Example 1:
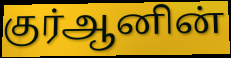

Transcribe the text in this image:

குர்ஆனின்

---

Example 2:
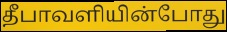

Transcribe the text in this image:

தீபாவளியின்போது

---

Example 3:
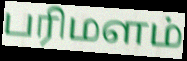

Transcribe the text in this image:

பரிமளம்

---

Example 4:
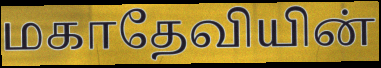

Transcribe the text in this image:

மகாதேவியின்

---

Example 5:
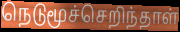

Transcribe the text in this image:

நெடுமூச்செறிந்தாள்